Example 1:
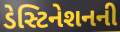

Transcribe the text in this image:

ડેસ્ટિનેશનની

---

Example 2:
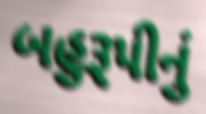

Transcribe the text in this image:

બહુરૂપીનું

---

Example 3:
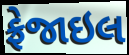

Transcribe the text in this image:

ફ્રેજાઇલ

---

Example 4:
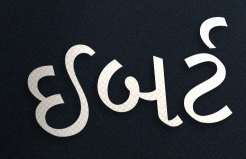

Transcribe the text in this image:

ઈબર્ટ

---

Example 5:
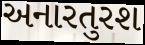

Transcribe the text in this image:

અનારતુરશ